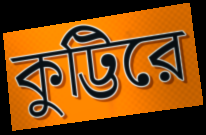
কুট্টিরে